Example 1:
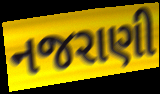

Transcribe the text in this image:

નજરાણી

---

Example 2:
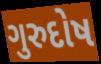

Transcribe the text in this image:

ગુરુદોષ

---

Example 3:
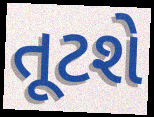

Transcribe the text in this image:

તૂટશે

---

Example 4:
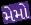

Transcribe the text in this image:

મેમો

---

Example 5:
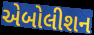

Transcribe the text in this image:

એબોલીશન